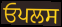
ਓਪਲਸ